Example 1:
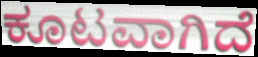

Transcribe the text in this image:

ಕೂಟವಾಗಿದೆ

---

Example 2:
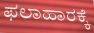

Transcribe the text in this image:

ಫಲಾಹಾರಕ್ಕೆ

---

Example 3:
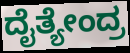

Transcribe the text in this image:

ದೈತ್ಯೇಂದ್ರ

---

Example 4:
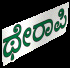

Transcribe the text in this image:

ಥೇರಾಪಿ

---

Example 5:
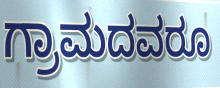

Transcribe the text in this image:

ಗ್ರಾಮದವರೂ